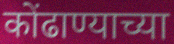
कोंढाण्याच्या